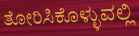
ತೋರಿಸಿಕೊಳ್ಳುವಲ್ಲಿ